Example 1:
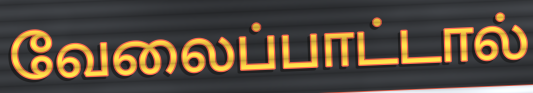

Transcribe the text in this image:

வேலைப்பாட்டால்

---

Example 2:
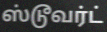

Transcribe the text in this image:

ஸ்டூவர்ட்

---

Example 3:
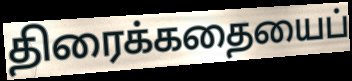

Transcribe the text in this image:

திரைக்கதையைப்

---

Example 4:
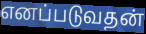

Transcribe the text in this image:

எனப்படுவதன்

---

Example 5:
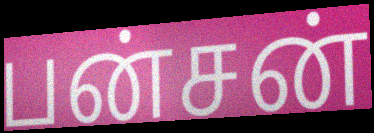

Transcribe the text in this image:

பன்சன்